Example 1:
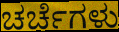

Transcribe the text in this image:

ಚರ್ಚೆಗಳು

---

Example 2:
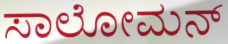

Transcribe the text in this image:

ಸಾಲೋಮನ್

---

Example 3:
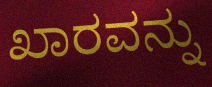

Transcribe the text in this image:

ಖಾರವನ್ನು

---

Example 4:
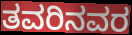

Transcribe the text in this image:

ತವರಿನವರ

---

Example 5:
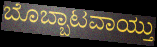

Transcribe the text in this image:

ಬೊಬ್ಬಾಟವಾಯ್ತು